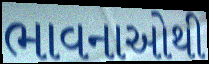
ભાવનાઓથી